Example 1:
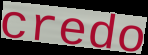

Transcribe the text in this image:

credo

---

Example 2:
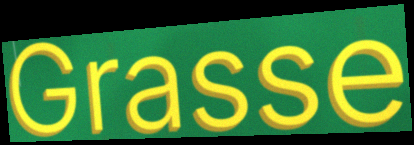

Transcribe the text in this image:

Grasse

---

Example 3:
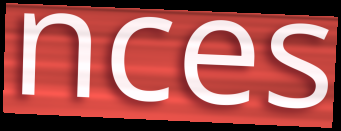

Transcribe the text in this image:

nces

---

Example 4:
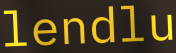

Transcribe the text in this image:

lendlu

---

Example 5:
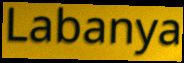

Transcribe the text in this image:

Labanya